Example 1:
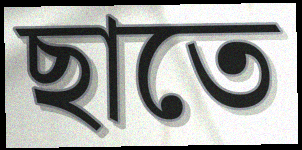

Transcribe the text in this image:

ছাতে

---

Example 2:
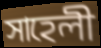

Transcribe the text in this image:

সাহেলী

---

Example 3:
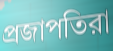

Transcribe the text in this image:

প্রজাপতিরা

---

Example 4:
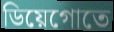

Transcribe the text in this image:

ডিয়েগোতে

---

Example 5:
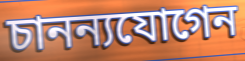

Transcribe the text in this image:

চানন্যযোগেন